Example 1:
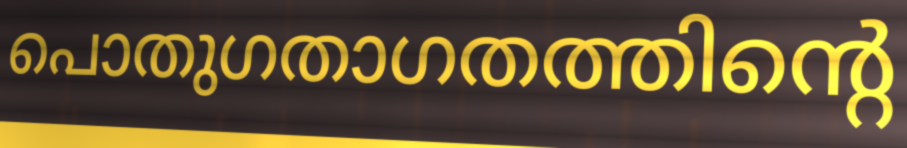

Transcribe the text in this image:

പൊതുഗതാഗതത്തിന്റെ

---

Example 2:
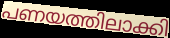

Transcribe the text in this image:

പണയത്തിലാക്കി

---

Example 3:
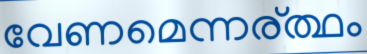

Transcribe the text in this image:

വേണമെന്നര്ത്ഥം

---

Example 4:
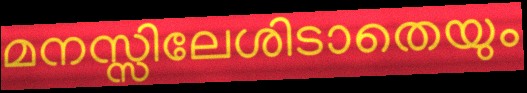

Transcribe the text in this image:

മനസ്സിലേശിടാതെയും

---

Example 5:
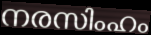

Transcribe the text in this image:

നരസിംഹം